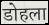
डोहला